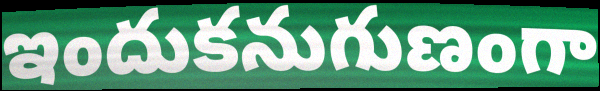
ఇందుకనుగుణంగా